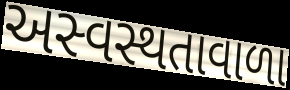
અસ્વસ્થતાવાળા